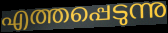
എത്തപ്പെടുന്നു